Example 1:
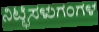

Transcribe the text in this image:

ನಿಟ್ಟೆಸಳುಗಂಗಳ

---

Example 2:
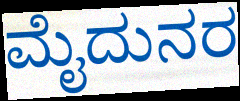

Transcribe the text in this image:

ಮೈದುನರ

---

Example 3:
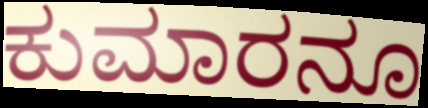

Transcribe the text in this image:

ಕುಮಾರನೂ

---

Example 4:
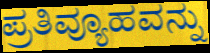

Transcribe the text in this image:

ಪ್ರತಿವ್ಯೂಹವನ್ನು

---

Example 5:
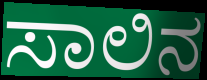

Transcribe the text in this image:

ಸಾಲಿನ